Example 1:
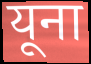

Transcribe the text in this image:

यूना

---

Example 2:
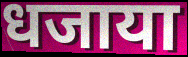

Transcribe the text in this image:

धजाया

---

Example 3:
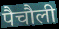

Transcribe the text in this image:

पैचौली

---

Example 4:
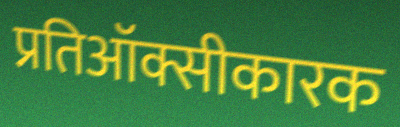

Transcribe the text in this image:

प्रतिऑक्सीकारक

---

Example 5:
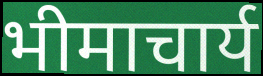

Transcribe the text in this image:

भीमाचार्य